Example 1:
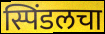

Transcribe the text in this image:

स्पिंडलचा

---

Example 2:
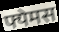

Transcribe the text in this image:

फ्येमस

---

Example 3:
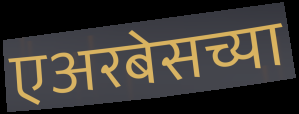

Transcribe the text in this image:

एअरबेसच्या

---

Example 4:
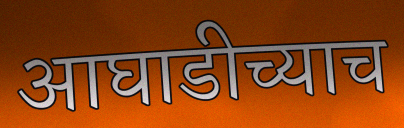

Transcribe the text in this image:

आघाडीच्याच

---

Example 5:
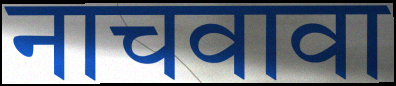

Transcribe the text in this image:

नाचवावा